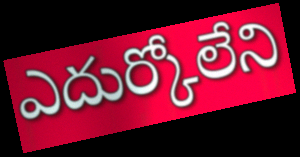
ఎదుర్కోలేని